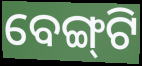
ବେଙ୍ଗ୍‌ଟି